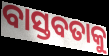
ବାସ୍ତବତାକୁ